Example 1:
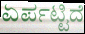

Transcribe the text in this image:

ಏರ್ಪಟ್ಟಿದೆ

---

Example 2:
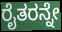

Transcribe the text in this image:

ರೈತರನ್ನೇ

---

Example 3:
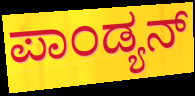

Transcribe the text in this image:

ಪಾಂಡ್ಯನ್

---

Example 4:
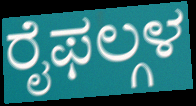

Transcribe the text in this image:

ರೈಫಲ್ಗಳ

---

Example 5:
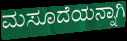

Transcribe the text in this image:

ಮಸೂದೆಯನ್ನಾಗಿ